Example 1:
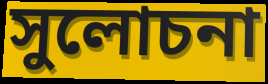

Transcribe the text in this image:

সুলোচনা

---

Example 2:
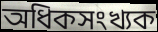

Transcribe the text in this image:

অধিকসংখ্যক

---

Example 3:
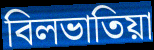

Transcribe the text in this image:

বিলভাতিয়া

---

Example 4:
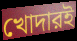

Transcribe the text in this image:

খোদারই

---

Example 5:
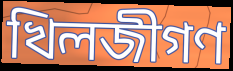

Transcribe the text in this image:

খিলজীগণ